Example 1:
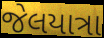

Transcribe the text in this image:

જેલયાત્રા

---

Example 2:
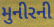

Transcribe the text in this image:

મુનીરની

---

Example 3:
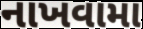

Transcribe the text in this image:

નાખવામા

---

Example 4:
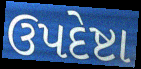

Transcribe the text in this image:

ઉપદેષ્ટા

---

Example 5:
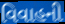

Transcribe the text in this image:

વિવાહની